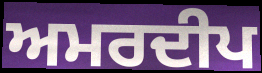
ਅਮਰਦੀਪ